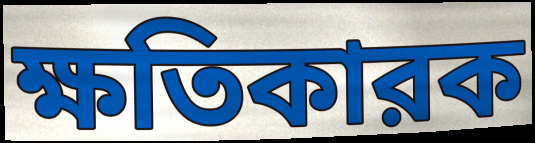
ক্ষতিকারক